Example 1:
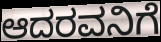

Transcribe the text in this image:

ಆದರವನಿಗೆ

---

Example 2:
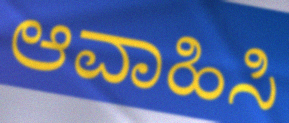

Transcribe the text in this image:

ಆವಾಹಿಸಿ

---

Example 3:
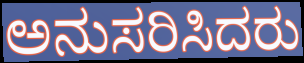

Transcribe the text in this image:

ಅನುಸರಿಸಿದರು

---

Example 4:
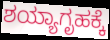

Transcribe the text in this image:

ಶಯ್ಯಾಗೃಹಕ್ಕೆ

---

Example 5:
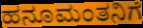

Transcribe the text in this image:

ಹನೂಮಂತನಿಗೆ